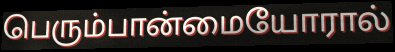
பெரும்பான்மையோரால்